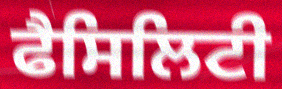
ਫੈਸਿਲਿਟੀ